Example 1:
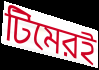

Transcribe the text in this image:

টিমেরই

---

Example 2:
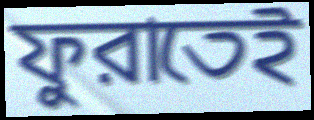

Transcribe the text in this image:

ফুরাতেই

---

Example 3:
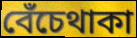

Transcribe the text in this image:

বেঁচেথাকা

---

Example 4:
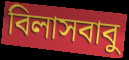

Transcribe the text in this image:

বিলাসবাবু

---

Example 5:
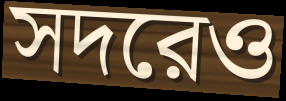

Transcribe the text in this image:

সদরেও